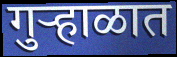
गुऱ्हाळात